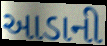
આડાની